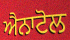
ਐਨਾਟੋਲ